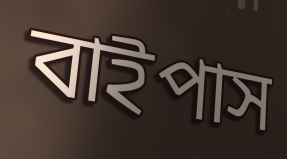
বাইপাস